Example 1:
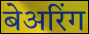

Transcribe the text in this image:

बेअरिंग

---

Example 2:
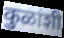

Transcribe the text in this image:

कुळांशी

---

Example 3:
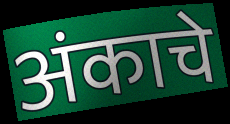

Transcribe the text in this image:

अंकाचे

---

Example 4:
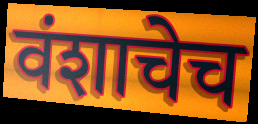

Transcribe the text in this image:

वंशाचेच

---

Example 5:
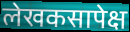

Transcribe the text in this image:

लेखकसापेक्ष